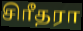
சிரீதரா